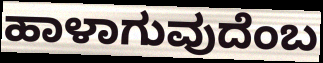
ಹಾಳಾಗುವುದೆಂಬ